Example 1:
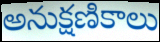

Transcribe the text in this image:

అనుక్షణికాలు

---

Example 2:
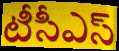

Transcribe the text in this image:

టీసీఎస్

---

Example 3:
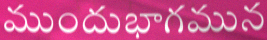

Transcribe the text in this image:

ముందుభాగమున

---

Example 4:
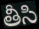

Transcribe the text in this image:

తీసి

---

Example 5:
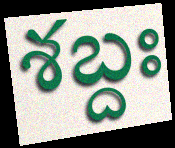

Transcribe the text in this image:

శబ్దః